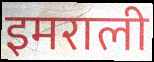
इमराली